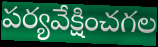
పర్యవేక్షించగల